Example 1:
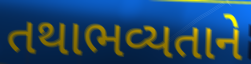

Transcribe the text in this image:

તથાભવ્યતાને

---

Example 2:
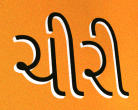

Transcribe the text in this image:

ચીરી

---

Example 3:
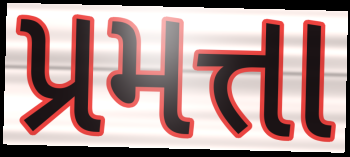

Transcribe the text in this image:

પ્રમત્તા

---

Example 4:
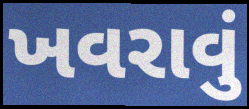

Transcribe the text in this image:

ખવરાવું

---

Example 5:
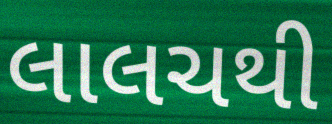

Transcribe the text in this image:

લાલચથી